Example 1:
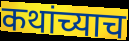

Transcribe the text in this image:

कथांच्याच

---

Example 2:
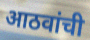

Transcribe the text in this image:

आठवांची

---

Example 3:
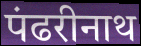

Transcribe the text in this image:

पंढरीनाथ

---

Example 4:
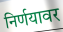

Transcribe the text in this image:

निर्णयावर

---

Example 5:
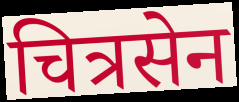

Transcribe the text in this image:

चित्रसेन